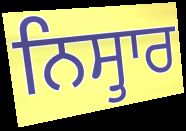
ਨਿਸ੍ਤਾਰ